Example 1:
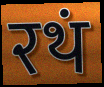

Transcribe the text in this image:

रथं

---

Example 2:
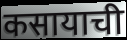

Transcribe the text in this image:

कसायाची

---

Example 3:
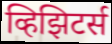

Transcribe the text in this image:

व्हिझिटर्स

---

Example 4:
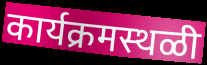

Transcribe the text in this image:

कार्यक्रमस्थळी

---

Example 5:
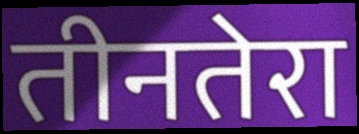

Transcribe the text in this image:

तीनतेरा